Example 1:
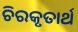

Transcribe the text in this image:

ଚିରକୃତାର୍ଥ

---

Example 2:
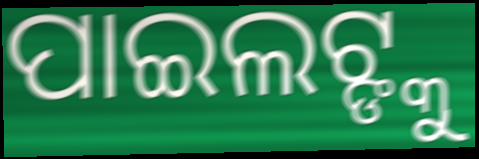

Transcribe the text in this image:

ପାଇଲଟ୍ଙ୍କୁ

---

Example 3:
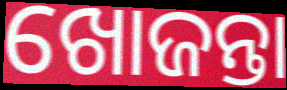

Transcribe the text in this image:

ଖୋଜନ୍ତା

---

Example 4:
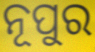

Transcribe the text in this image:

ନୂପୁର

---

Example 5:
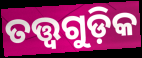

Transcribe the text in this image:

ତତ୍ତ୍ବଗୁଡ଼ିକ